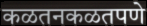
कळतनकळतपणे